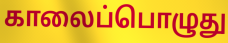
காலைப்பொழுது